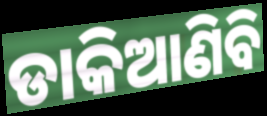
ଡାକିଆଣିବି